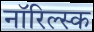
नॉरिल्स्क